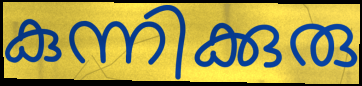
കുന്നിക്കുരു